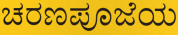
ಚರಣಪೂಜೆಯ